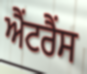
ਐਂਟਰੈਂਸ